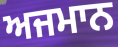
ਅਜਮਾਨ